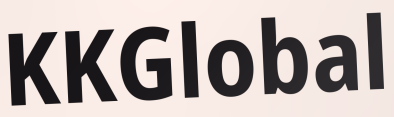
KKGlobal